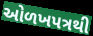
ઓળખપત્રથી